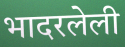
भादरलेली